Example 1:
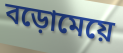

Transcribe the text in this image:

বড়োমেয়ে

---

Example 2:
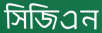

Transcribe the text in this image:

সিজিএন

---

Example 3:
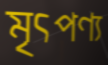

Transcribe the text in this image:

মৃৎপণ্য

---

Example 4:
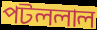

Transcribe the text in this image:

পটললাল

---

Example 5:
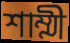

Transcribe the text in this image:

শাম্মী